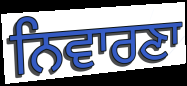
ਨਿਵਾਰਣਾ